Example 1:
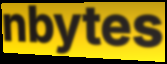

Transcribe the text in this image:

nbytes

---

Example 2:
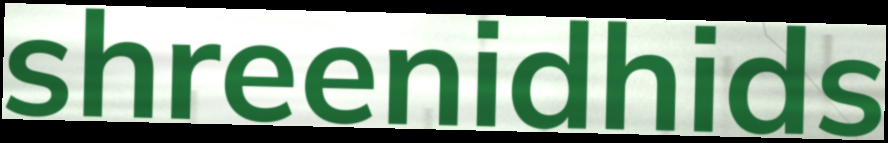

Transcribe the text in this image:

shreenidhids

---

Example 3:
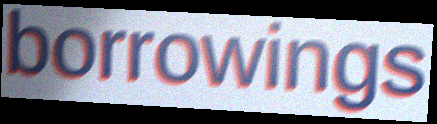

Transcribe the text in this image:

borrowings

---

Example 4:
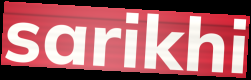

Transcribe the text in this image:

sarikhi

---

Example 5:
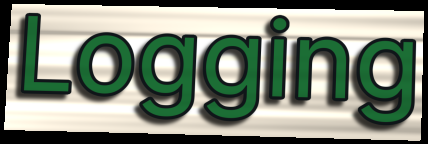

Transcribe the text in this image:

Logging